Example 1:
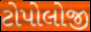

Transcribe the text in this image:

ટોપોલોજી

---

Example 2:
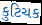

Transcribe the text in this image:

કુટિચક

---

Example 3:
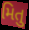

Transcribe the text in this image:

મિતુ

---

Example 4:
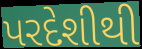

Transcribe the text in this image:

પરદેશીથી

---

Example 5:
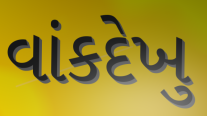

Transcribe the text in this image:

વાંકદેખુ